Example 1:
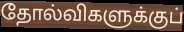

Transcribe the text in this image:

தோல்விகளுக்குப்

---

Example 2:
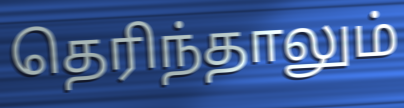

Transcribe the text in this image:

தெரிந்தாலும்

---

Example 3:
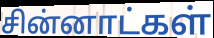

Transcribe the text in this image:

சின்னாட்கள்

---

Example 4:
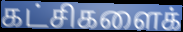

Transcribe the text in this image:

கட்சிகளைக்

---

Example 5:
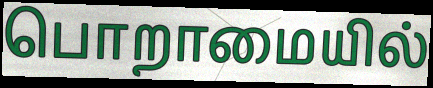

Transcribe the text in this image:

பொறாமையில்